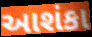
આશંકા